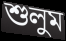
শুলুম